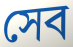
সেব